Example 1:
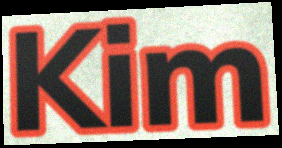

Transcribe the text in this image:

Kim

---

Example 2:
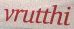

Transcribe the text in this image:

vrutthi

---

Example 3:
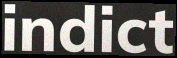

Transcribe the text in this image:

indict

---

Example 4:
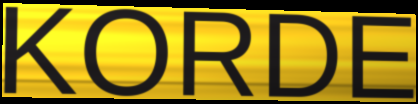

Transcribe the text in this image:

KORDE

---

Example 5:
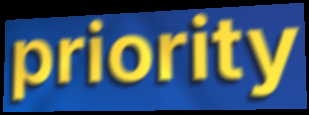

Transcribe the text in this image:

priority